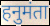
हनुमंता